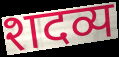
शदव्य